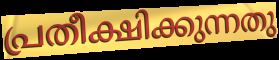
പ്രതീക്ഷിക്കുന്നതു